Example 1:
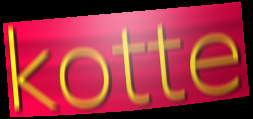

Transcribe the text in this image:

kotte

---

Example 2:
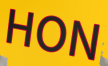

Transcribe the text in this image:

HON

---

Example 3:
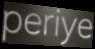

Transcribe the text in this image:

periye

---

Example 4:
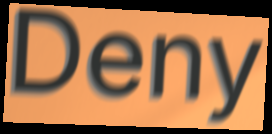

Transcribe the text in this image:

Deny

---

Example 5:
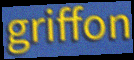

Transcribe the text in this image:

griffon